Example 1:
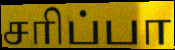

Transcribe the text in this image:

சரிப்பா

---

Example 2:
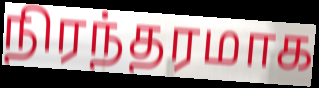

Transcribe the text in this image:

நிரந்தரமாக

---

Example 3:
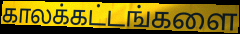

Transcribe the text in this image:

காலக்கட்டங்களை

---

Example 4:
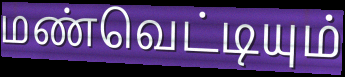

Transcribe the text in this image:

மண்வெட்டியும்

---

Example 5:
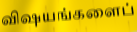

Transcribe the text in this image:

விஷயங்களைப்